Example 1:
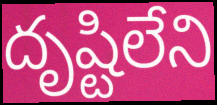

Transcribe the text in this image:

దృష్టిలేని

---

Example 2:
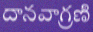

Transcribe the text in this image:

దానవాగ్రణి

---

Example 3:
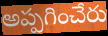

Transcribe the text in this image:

అప్పగించేరు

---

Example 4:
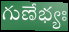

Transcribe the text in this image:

గుణేభ్యః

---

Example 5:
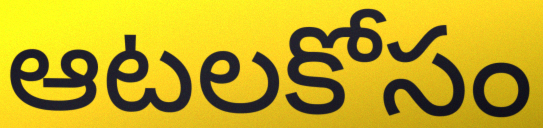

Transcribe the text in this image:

ఆటలకోసం